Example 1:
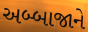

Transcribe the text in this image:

અબ્બાજાને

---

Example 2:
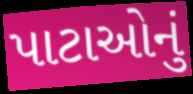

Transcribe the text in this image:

પાટાઓનું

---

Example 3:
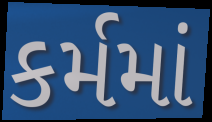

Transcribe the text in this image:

કર્મમાં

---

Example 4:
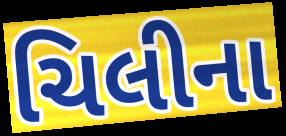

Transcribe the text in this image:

ચિલીના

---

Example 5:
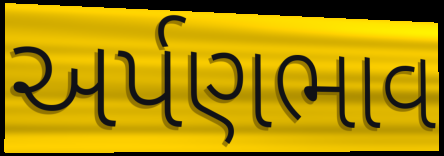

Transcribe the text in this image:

અર્પણભાવ